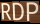
RDP